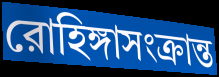
রোহিঙ্গাসংক্রান্ত